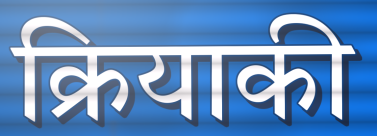
क्रियाकी